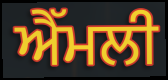
ਐੱਮਲੀ